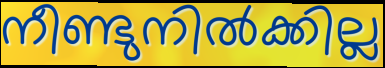
നീണ്ടുനിൽക്കില്ല